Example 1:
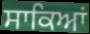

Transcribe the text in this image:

ਸਾਕਿਆਂ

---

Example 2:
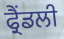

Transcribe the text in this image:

ਫ੍ਰੈਂਡਲੀ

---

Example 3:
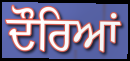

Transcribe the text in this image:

ਦੌਰਿਆਂ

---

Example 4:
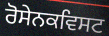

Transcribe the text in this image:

ਰੋਸੇਨਕਵਿਸਟ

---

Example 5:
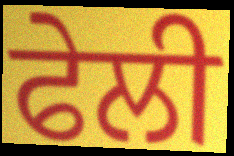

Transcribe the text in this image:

ਫੇਲੀ